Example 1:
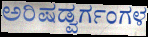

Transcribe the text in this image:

ಅರಿಷಡ್ವರ್ಗಂಗಳ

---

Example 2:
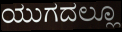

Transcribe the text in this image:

ಯುಗದಲ್ಲೂ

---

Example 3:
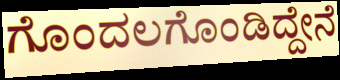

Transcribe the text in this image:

ಗೊಂದಲಗೊಂಡಿದ್ದೇನೆ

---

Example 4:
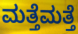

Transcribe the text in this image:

ಮತ್ತೆಮತ್ತೆ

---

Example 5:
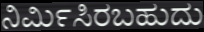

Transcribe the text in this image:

ನಿರ್ಮಿಸಿರಬಹುದು